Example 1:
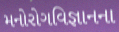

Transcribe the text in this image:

મનોરોગવિજ્ઞાનના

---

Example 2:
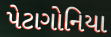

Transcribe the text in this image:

પેટાગોનિયા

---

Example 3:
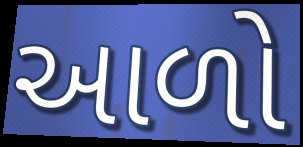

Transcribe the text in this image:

આળો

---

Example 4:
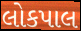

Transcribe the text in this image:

લોકપાલ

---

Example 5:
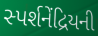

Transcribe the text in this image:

સ્પર્શનેંદ્રિયની